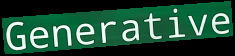
Generative